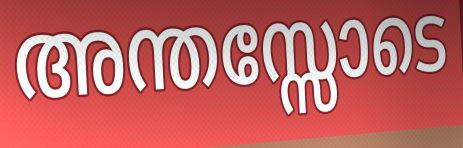
അന്തസ്സോടെ